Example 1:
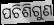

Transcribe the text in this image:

ପଚିଶିଗୁଣ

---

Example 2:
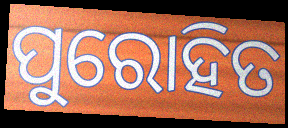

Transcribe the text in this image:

ପୁରୋହିତ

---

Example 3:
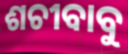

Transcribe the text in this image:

ଶଚୀବାବୁ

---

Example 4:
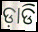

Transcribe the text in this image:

ଡ଼ାଡି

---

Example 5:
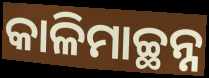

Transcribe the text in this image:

କାଳିମାଚ୍ଛନ୍ନ